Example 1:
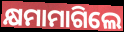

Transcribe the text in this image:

କ୍ଷମାମାଗିଲେ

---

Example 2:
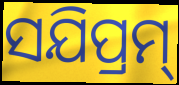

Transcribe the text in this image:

ସଯିପ୍ରମ୍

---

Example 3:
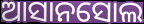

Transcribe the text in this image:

ଆସାନସୋଲ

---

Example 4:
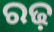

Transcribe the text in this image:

ରଢ଼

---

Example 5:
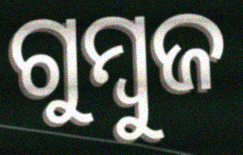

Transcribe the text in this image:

ଗୁମ୍ବୁଜ